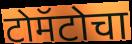
टोमॅटोचा